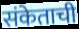
संकेताची